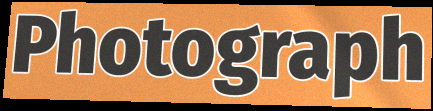
Photograph